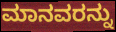
ಮಾನವರನ್ನು